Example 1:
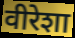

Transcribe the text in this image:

वीरेशा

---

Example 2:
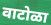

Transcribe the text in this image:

वाटोळा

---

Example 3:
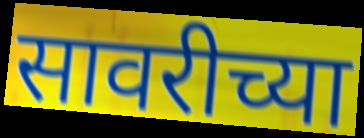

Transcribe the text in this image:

सावरीच्या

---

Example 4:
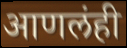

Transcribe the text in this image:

आणलंही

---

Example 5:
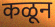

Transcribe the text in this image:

कळून